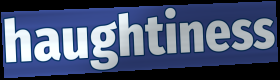
haughtiness